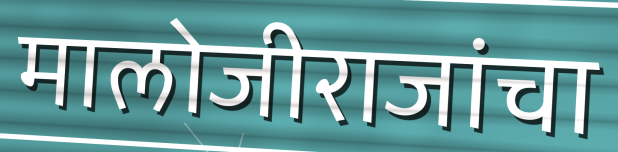
मालोजीराजांचा